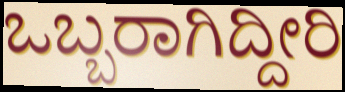
ಒಬ್ಬರಾಗಿದ್ದೀರಿ